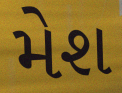
મેશ